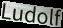
Ludolf